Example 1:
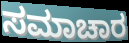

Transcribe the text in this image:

ಸಮಾಚಾರ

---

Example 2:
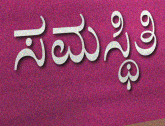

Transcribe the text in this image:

ಸಮಸ್ಥಿತಿ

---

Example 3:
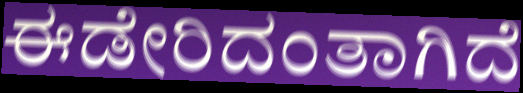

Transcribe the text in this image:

ಈಡೇರಿದಂತಾಗಿದೆ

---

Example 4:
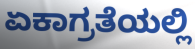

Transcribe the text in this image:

ಏಕಾಗ್ರತೆಯಲ್ಲಿ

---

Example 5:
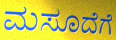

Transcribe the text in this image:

ಮಸೂದೆಗೆ